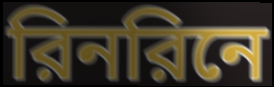
রিনরিনে